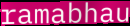
ramabhau